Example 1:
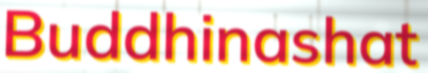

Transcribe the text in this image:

Buddhinashat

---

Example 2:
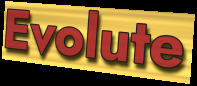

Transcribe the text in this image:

Evolute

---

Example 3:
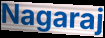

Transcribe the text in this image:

Nagaraj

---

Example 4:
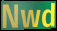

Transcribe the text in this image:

Nwd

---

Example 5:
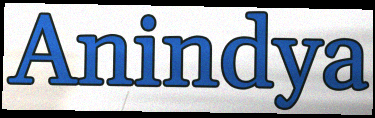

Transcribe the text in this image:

Anindya